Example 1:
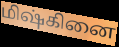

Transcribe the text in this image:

மிஷ்கினை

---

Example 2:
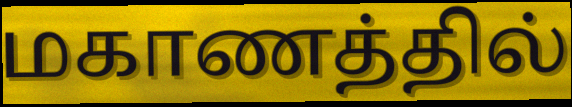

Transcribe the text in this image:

மகாணத்தில்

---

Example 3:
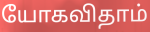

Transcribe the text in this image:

யோகவிதாம்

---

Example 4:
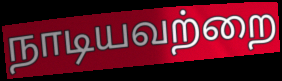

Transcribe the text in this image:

நாடியவற்றை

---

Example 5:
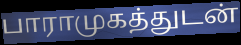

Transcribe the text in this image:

பாராமுகத்துடன்